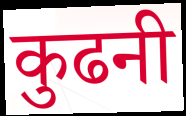
कुढनी